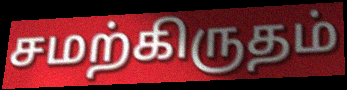
சமற்கிருதம்